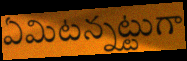
ఏమిటన్నట్టుగా